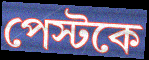
পেস্টকে